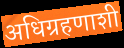
अधिग्रहणाशी